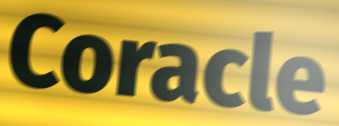
Coracle